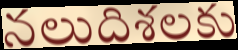
నలుదిశలకు